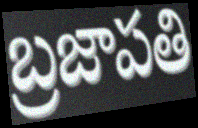
బ్రజాపతి